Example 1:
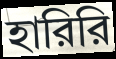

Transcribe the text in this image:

হারিরি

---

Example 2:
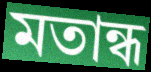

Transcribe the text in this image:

মতান্ধ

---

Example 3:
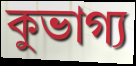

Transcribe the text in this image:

কুভাগ্য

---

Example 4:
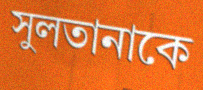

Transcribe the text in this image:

সুলতানাকে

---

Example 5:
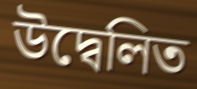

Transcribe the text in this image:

উদ্বেলিত